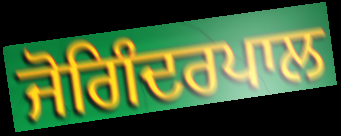
ਜੋਗਿੰਦਰਪਾਲ